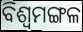
ବିଶ୍ୱମଙ୍ଗଳ